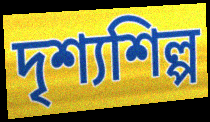
দৃশ্যশিল্প